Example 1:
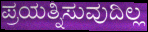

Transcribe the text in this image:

ಪ್ರಯತ್ನಿಸುವುದಿಲ್ಲ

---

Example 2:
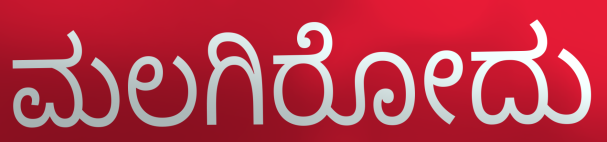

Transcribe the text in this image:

ಮಲಗಿರೋದು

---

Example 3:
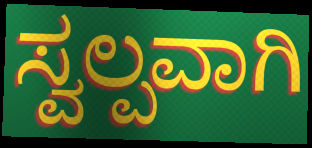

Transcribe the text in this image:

ಸ್ವಲ್ಪವಾಗಿ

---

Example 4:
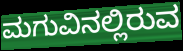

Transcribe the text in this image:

ಮಗುವಿನಲ್ಲಿರುವ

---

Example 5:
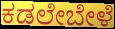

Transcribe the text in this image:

ಕಡಲೇಬೇಳೆ